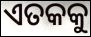
ଏତକକୁ